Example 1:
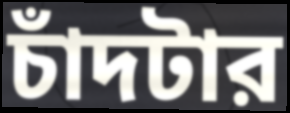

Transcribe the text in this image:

চাঁদটার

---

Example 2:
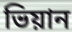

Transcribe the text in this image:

ভিয়ান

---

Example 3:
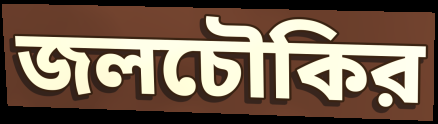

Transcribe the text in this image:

জলচৌকির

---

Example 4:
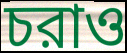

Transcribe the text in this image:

চরাও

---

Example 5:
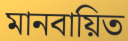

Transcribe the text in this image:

মানবায়িত